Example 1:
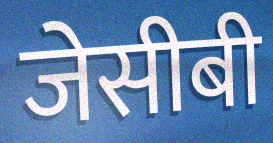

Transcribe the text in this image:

जेसीबी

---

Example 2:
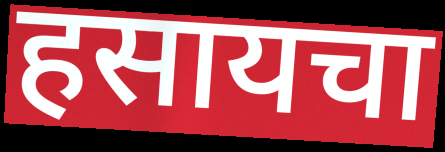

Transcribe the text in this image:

हसायचा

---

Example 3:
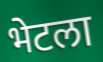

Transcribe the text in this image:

भेटला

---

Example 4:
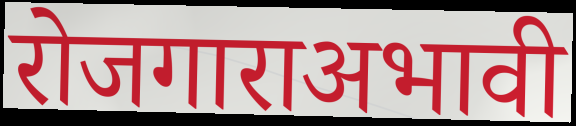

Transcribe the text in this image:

रोजगाराअभावी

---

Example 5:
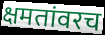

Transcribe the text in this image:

क्षमतांवरच